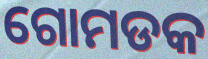
ଗୋମଡକ